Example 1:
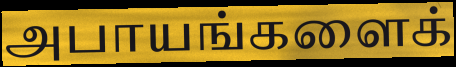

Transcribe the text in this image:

அபாயங்களைக்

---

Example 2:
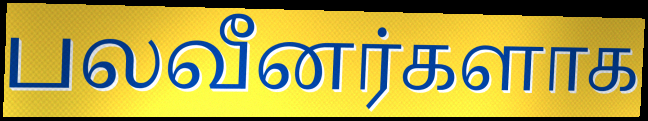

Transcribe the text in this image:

பலவீனர்களாக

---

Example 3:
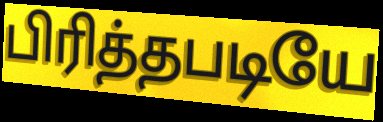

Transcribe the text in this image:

பிரித்தபடியே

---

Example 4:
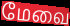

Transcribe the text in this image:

மேவை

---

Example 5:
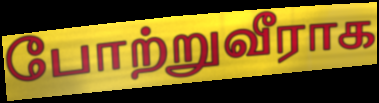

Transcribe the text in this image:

போற்றுவீராக